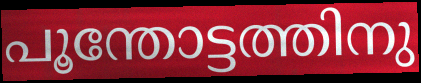
പൂന്തോട്ടത്തിനു